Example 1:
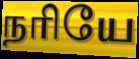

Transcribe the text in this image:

நரியே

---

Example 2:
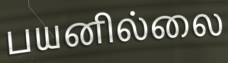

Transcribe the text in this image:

பயனில்லை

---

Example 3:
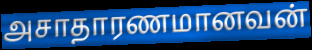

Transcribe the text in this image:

அசாதாரணமானவன்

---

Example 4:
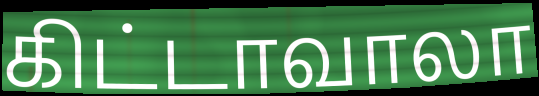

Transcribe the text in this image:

கிட்டாவாலா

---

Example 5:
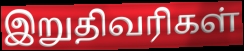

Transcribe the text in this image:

இறுதிவரிகள்